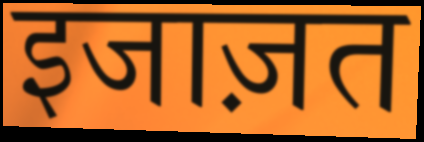
इजाज़त